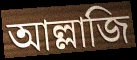
আল্লাজি